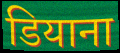
डियाना